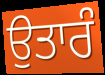
ਉਤਾਰੰ